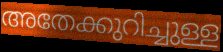
അതേക്കുറിച്ചുള്ള